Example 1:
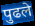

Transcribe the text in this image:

पुढले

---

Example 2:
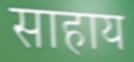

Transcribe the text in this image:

साहाय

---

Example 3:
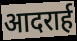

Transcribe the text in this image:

आदरार्ह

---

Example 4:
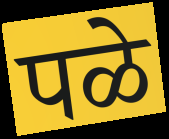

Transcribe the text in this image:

पळे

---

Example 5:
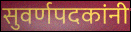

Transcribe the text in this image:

सुवर्णपदकांनी